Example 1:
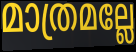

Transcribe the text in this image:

മാത്രമല്ലേ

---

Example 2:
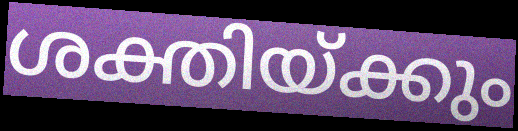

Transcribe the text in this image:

ശക്തിയ്ക്കും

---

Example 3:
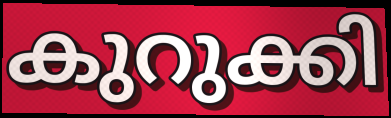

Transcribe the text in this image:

കുറുക്കി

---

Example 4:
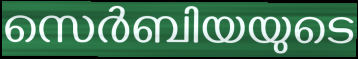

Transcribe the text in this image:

സെർബിയയുടെ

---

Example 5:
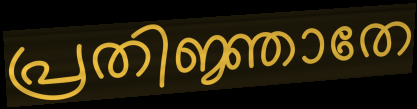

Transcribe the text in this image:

പ്രതിജ്ഞാതേ